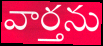
వార్తను